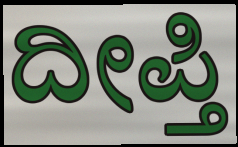
ದೀಪ್ತಿ